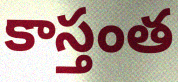
కాస్తంత